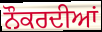
ਨੌਕਰਦੀਆਂ